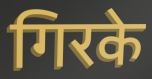
गिरके